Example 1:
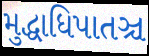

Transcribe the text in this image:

મુદ્ધાધિપાતઞ્ચ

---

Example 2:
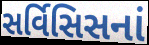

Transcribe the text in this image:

સર્વિસિસનાં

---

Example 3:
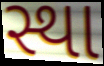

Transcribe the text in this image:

સ્થા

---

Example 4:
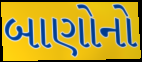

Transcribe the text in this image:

બાણોનો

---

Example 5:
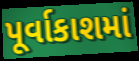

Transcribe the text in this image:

પૂર્વાકાશમાં